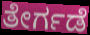
ತೇರ್ಗಡೆ